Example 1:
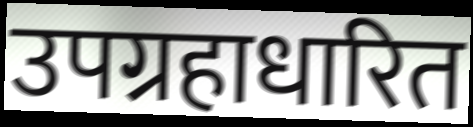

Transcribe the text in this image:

उपग्रहाधारित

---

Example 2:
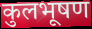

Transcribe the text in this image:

कुलभूषण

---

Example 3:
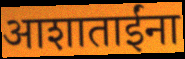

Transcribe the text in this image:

आशाताईंना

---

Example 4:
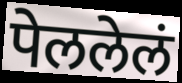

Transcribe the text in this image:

पेललेलं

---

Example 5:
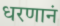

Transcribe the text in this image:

धरणानं